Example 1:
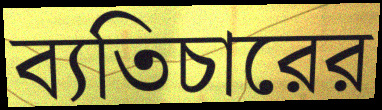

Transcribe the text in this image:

ব্যতিচারের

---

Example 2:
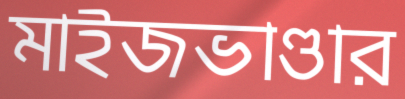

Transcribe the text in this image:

মাইজভাণ্ডার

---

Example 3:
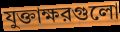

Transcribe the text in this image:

যুক্তাক্ষরগুলো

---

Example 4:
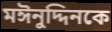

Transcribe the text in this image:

মঈনুদ্দিনকে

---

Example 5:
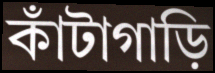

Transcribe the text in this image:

কাঁটাগাড়ি